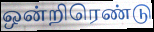
ஒன்றிரெண்டு